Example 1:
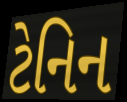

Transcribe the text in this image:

ટેનિન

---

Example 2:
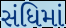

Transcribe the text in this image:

સંધિમાં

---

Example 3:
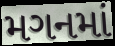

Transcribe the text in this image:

મગનમાં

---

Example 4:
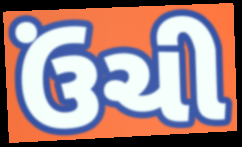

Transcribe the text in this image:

ઉંચી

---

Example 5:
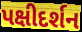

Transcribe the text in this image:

પક્ષીદર્શન